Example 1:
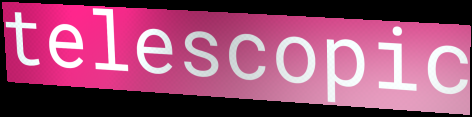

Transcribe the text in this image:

telescopic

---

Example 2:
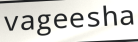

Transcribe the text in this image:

vageesha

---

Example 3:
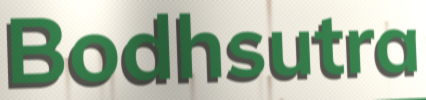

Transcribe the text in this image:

Bodhsutra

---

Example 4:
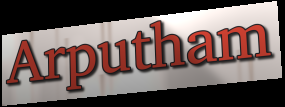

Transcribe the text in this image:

Arputham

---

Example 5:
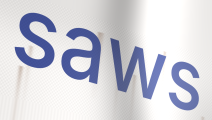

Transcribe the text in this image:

saws